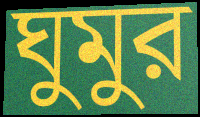
ঘুমুর